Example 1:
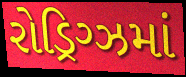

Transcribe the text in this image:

રોડ્રિગ્ઝમાં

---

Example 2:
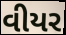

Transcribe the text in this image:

વીયર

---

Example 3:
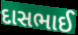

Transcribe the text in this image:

દાસભાઈ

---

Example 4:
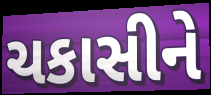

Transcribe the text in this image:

ચકાસીને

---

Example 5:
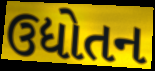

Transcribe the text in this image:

ઉદ્યોતન